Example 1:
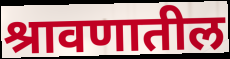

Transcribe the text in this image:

श्रावणातील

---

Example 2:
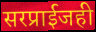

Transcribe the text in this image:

सरप्राईजही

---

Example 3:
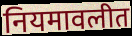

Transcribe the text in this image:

नियमावलीत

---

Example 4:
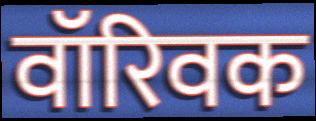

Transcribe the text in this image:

वॉरिवक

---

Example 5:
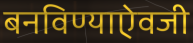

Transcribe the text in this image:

बनविण्याऐवजी